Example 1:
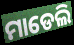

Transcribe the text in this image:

ମାଡେଲି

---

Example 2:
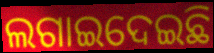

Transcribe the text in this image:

ଲଗାଇଦେଇଛି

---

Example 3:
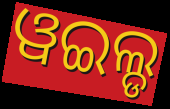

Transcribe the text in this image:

ୱଇଲ୍ଡ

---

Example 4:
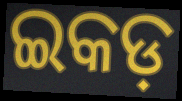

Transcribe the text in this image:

ଇକଡ଼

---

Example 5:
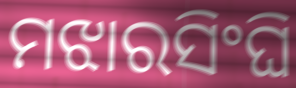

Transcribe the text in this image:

ମଝାରସିଂଘି